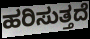
ಹರಿಸುತ್ತದೆ